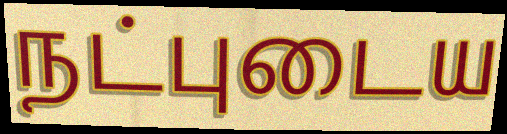
நட்புடைய